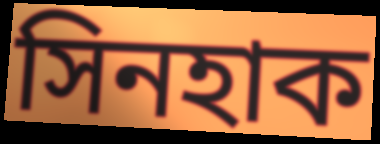
সিনহাক